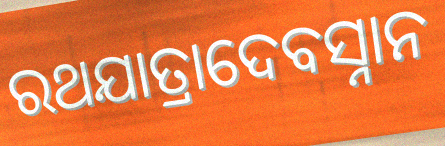
ରଥଯାତ୍ରାଦେବସ୍ନାନ